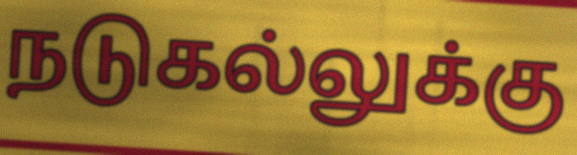
நடுகல்லுக்கு